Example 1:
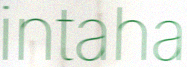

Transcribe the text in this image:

intaha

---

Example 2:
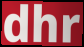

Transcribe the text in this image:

dhr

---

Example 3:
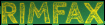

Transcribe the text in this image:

RIMFAX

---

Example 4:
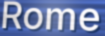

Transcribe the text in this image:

Rome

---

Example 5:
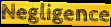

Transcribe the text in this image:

Negligence